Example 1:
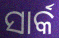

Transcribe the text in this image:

ସାର୍କ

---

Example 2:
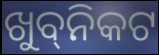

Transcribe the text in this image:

ଖୁବ୍‌ନିକଟ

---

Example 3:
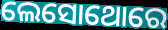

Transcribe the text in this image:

ଲେସୋଥୋରେ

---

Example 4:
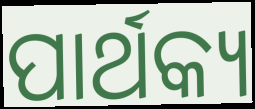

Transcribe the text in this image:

ପାର୍ଥକ୍ୟ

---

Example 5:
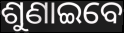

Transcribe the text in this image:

ଶୁଣାଇବେ